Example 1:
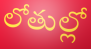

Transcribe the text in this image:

లోతుల్లో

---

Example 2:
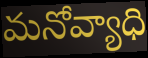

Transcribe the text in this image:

మనోవ్యాధి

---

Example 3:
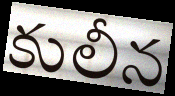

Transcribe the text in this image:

కులీన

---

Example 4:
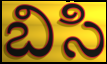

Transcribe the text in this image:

బిసి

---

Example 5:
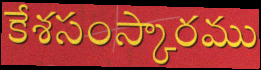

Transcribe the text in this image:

కేశసంస్కారము